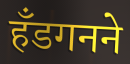
हँडगनने